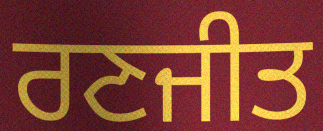
ਰਣਜੀਤ